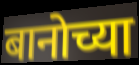
बानोच्या